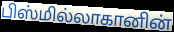
பிஸ்மில்லாகானின்